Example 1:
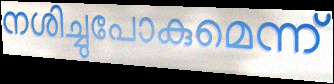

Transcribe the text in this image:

നശിച്ചുപോകുമെന്ന്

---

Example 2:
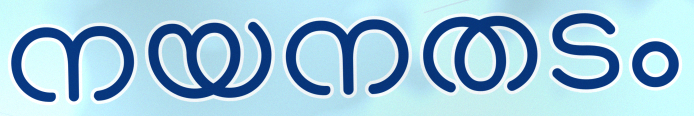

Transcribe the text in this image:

നയനതടം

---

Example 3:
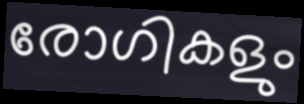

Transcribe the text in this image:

രോഗികളും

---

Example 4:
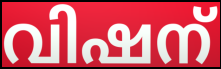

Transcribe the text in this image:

വിഷന്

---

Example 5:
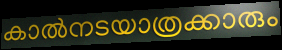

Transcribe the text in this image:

കാൽനടയാത്രക്കാരും